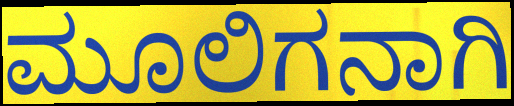
ಮೂಲಿಗನಾಗಿ